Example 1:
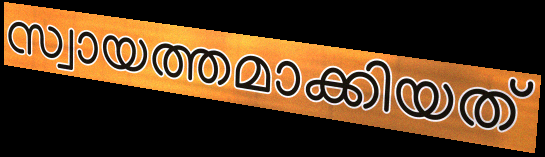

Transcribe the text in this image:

സ്വായത്തമാക്കിയത്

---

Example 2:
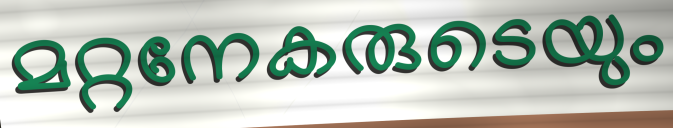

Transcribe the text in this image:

മറ്റനേകരുടെയും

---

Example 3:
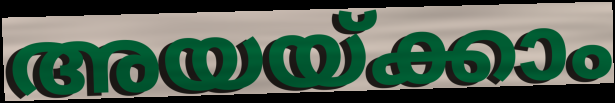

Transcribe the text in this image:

അയയ്ക്കാം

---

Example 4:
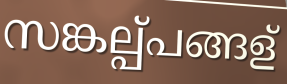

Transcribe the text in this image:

സങ്കല്പ്പങ്ങള്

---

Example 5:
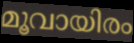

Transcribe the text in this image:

മൂവായിരം